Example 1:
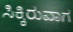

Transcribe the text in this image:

ಸಿಕ್ಕಿರುವಾಗ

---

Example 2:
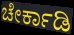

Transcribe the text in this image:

ಚೇರ್ಕಾಡಿ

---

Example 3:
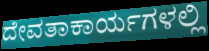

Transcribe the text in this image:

ದೇವತಾಕಾರ್ಯಗಳಲ್ಲಿ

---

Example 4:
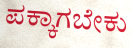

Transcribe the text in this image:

ಪಕ್ಕಾಗಬೇಕು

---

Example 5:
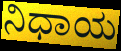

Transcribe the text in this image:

ನಿಧಾಯ